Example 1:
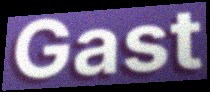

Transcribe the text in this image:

Gast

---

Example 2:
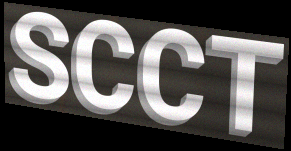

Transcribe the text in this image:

SCCT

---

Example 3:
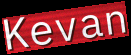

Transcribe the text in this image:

Kevan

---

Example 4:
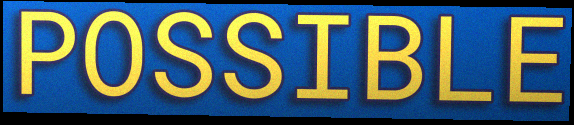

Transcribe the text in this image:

POSSIBLE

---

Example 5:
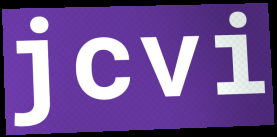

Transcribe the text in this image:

jcvi